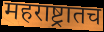
महराष्ट्रातच